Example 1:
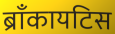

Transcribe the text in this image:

ब्राँकायटिस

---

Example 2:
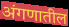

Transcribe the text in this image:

अंगणातील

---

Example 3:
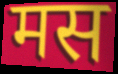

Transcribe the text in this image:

मस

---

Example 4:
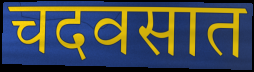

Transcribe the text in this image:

चदवसात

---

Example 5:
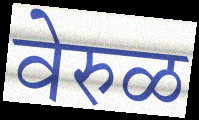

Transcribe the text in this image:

वेरुळ